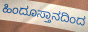
ಹಿಂದೂಸ್ತಾನದಿಂದ